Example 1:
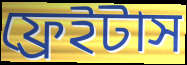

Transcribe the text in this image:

ফ্রেইটাস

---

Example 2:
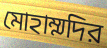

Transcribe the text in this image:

মোহাম্মদির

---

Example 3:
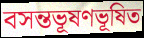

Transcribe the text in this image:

বসন্তভূষণভূষিত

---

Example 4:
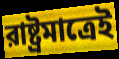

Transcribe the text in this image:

রাষ্ট্রমাত্রেই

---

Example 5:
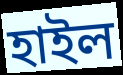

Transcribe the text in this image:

হাইল